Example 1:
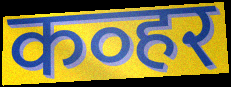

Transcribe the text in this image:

कव्हर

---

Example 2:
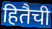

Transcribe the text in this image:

हितैची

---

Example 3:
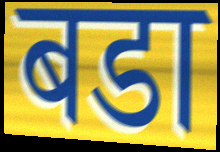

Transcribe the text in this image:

बडा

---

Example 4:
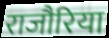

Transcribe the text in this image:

राजौरिया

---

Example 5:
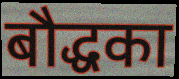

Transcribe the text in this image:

बौद्धका